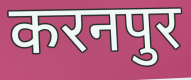
करनपुर